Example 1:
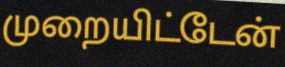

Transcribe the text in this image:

முறையிட்டேன்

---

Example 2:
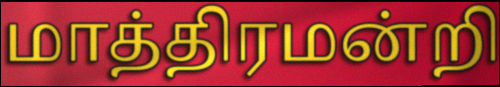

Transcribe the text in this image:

மாத்திரமன்றி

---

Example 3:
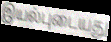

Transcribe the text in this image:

இயல்புடையது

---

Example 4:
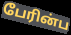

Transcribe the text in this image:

பேரின்ப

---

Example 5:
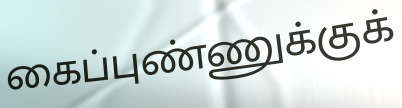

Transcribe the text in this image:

கைப்புண்ணுக்குக்